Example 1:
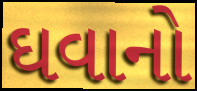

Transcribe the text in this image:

ઘવાનો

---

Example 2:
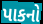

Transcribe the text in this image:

પાકનો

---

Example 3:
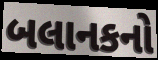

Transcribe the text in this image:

બલાનકનો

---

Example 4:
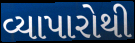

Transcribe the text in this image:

વ્યાપારોથી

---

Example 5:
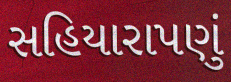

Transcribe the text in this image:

સહિયારાપણું